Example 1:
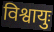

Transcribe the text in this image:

विश्वायुः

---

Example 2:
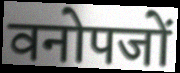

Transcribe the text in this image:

वनोपजों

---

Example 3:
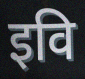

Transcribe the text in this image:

इवि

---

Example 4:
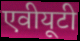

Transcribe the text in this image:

एवीयूटी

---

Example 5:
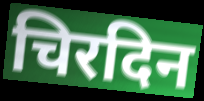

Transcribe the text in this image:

चिरदिन